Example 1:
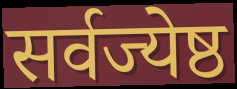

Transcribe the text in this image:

सर्वज्येष्ठ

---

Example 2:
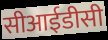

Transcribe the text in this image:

सीआईडीसी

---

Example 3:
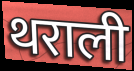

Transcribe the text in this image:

थराली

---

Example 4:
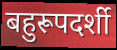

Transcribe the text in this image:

बहुरूपदर्शी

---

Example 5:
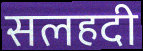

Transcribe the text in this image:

सलहदी